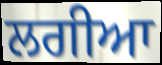
ਲਗੀਆ